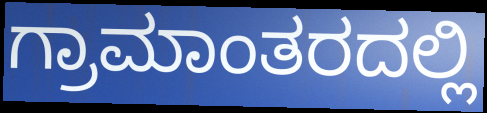
ಗ್ರಾಮಾಂತರದಲ್ಲಿ